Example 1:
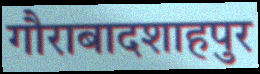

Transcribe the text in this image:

गौराबादशाहपुर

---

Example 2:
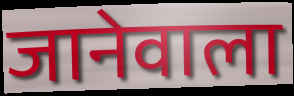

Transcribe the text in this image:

जानेवाला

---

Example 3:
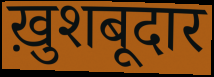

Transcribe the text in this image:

ख़ुशबूदार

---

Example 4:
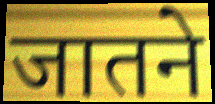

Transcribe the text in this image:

जातने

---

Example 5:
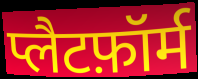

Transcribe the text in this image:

प्लैटफ़ॉर्म